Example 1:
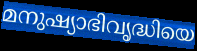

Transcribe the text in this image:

മനുഷ്യാഭിവൃദ്ധിയെ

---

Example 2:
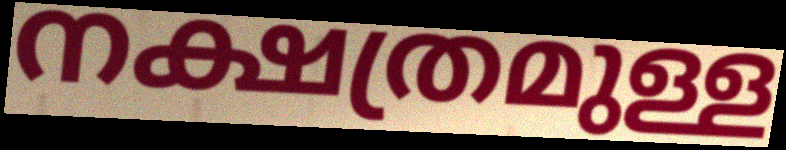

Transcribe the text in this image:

നക്ഷത്രമുള്ള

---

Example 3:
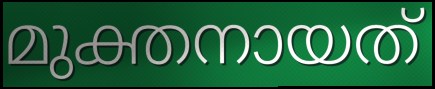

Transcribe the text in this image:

മുക്തനായത്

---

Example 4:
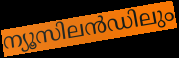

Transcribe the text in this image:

ന്യൂസിലൻഡിലും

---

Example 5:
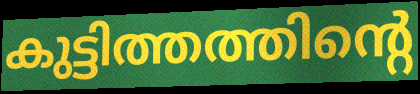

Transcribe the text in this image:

കുട്ടിത്തത്തിന്റെ